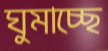
ঘুমাচ্ছে